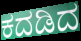
ಕದಡಿದ